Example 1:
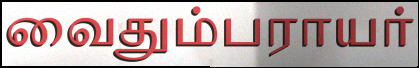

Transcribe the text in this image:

வைதும்பராயர்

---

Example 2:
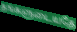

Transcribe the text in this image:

தங்களுடையதே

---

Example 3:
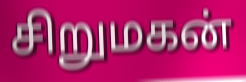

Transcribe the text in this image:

சிறுமகன்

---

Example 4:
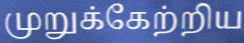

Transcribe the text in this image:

முறுக்கேற்றிய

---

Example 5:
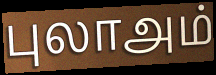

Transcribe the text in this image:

புலாஅம்